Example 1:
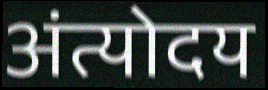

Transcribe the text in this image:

अंत्योदय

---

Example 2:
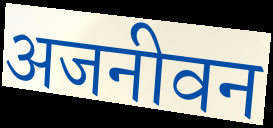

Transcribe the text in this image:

अजनीवन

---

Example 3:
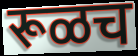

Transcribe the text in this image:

रूळच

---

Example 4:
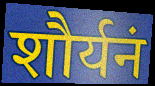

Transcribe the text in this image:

शौर्यनं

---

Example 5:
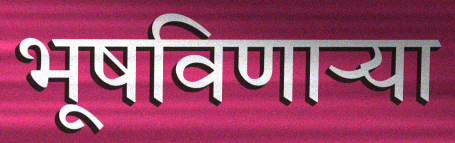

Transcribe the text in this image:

भूषविणाऱ्या